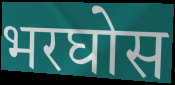
भरघोस